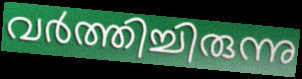
വർത്തിച്ചിരുന്നു